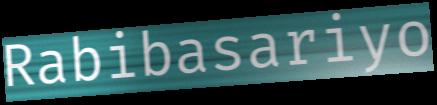
Rabibasariyo